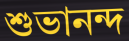
শুভানন্দ